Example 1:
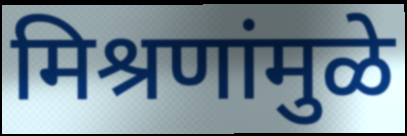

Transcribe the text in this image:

मिश्रणांमुळे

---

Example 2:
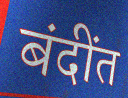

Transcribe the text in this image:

बंदींत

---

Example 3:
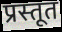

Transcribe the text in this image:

प्रस्तूत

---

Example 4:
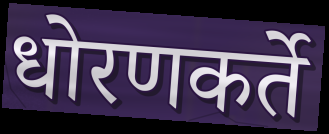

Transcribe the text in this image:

धोरणकर्ते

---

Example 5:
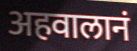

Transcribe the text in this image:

अहवालानं